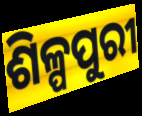
ଶିଳ୍ପପୁରୀ